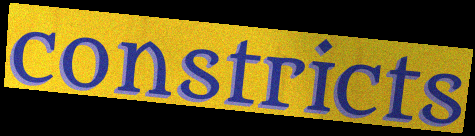
constricts